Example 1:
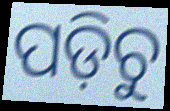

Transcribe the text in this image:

ପଡ଼ିଚୁ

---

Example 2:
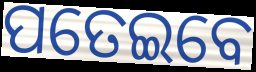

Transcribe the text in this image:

ପତେଇବେ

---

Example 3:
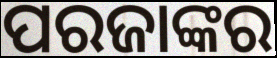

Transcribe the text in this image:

ପରଜାଙ୍କର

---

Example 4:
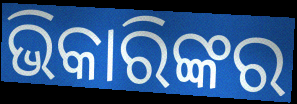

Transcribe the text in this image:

ଭିକାରିଙ୍କର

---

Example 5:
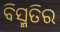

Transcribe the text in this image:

ବିସ୍ମତିର